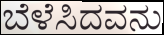
ಬೆಳೆಸಿದವನು